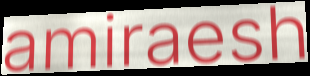
amiraesh